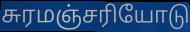
சுரமஞ்சரியோடு